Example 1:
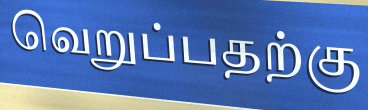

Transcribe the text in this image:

வெறுப்பதற்கு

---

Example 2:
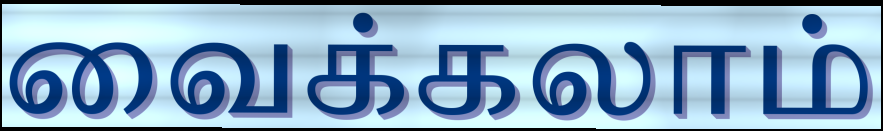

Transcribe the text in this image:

வைக்கலாம்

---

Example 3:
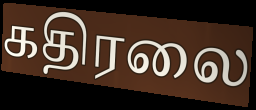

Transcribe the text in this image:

கதிரலை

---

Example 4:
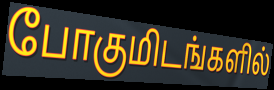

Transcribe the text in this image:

போகுமிடங்களில்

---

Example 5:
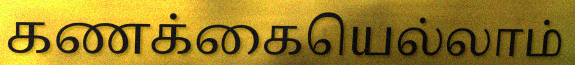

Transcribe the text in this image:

கணக்கையெல்லாம்